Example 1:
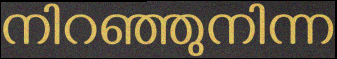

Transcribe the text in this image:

നിറഞ്ഞുനിന്ന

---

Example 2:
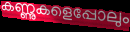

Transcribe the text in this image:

കണ്ണുകളെപ്പോലും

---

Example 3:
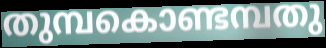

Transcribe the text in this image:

തുമ്പകൊണ്ടമ്പതു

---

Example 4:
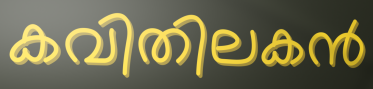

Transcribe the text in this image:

കവിതിലകൻ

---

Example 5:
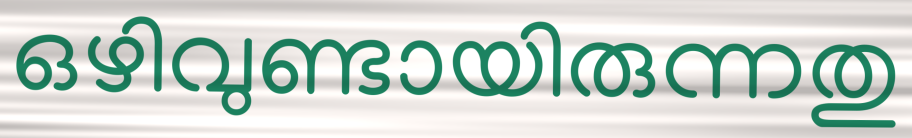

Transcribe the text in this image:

ഒഴിവുണ്ടായിരുന്നതു